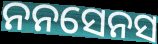
ନନସେନସ